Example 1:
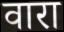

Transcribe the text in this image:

वारा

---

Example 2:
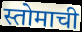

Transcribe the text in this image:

स्तोमाची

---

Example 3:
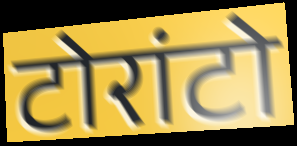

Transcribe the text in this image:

टोरांटो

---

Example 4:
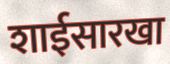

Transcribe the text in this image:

शाईसारखा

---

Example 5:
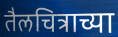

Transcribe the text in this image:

तैलचित्राच्या